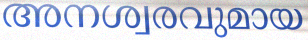
അനശ്വരവുമായ